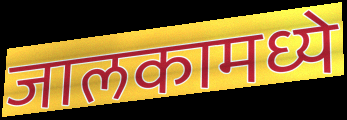
जालकामध्ये